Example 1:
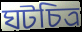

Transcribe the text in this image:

ঘটচিত্র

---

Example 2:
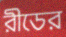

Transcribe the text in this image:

রীডের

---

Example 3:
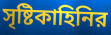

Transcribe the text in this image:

সৃষ্টিকাহিনির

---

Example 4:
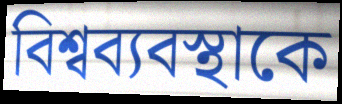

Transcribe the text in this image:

বিশ্বব্যবস্থাকে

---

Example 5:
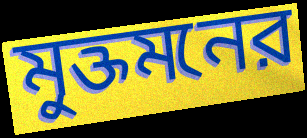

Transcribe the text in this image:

মুক্তমনের